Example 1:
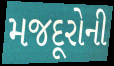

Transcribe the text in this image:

મજદૂરોની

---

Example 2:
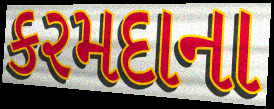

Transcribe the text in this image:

કરમદાના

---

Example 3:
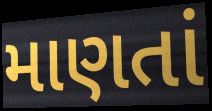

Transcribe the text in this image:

માણતાં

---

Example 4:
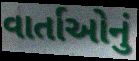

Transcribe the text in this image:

વાર્તાઓનું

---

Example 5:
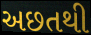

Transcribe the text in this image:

અછતથી